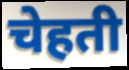
चेहती